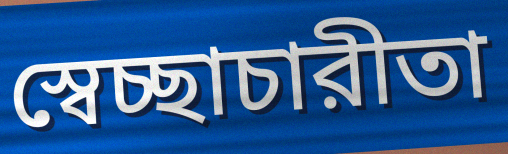
স্বেচ্ছাচারীতা